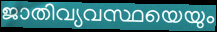
ജാതിവ്യവസ്ഥയെയും